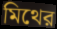
মিথের